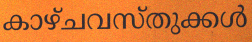
കാഴ്ചവസ്തുക്കൾ